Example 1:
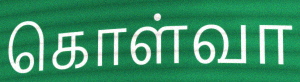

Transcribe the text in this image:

கொள்வா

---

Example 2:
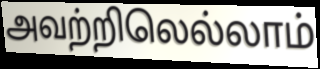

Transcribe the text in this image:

அவற்றிலெல்லாம்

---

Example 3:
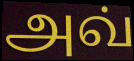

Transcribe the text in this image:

அவ்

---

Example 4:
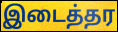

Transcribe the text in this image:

இடைத்தர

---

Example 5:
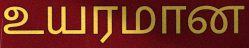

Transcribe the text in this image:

உயரமான